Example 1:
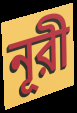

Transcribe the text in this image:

নূরী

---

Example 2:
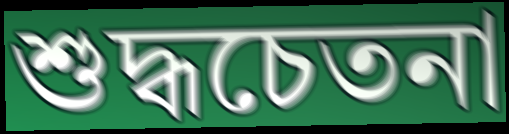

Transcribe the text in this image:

শুদ্ধচেতনা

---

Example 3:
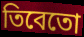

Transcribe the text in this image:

তিবেতো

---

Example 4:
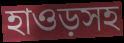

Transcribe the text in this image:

হাওড়সহ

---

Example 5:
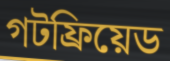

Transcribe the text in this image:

গটফ্রিয়েড